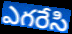
ఎగరేసి